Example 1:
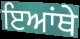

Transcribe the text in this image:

ਇਆਂਥੇ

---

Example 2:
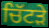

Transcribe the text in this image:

ਚਿੱਟੜੇ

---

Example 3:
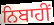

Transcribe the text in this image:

ਨਿਬਾਹੀਂ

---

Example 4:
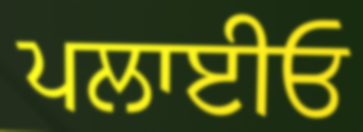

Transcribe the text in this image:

ਪਲਾਈਓ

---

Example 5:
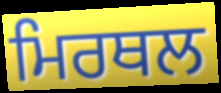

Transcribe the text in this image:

ਮਿਰਥਲ